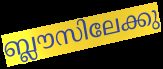
ബ്ലൗസിലേക്കു